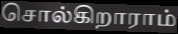
சொல்கிறாராம்